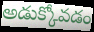
అడుక్కోవడం